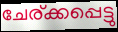
ചേര്ക്കപ്പെട്ടു